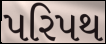
પરિપથ